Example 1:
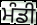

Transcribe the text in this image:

ਮੰਡੀ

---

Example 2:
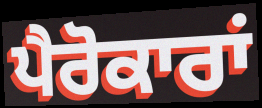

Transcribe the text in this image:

ਪੈਰੋਕਾਰਾਂ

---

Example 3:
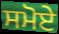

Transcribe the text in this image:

ਸਮੋਏ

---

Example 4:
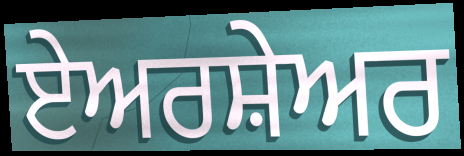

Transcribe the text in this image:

ਏਅਰਸ਼ੇਅਰ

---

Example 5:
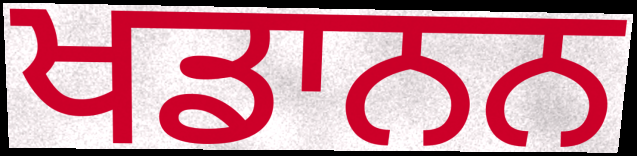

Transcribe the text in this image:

ਖਡਾਨਨ